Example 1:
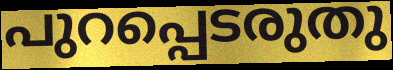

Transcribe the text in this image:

പുറപ്പെടരുതു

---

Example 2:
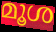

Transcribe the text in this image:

മൂശ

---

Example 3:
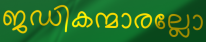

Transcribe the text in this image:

ജഡികന്മാരല്ലോ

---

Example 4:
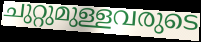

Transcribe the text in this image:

ചുറ്റുമുള്ളവരുടെ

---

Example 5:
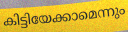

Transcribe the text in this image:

കിട്ടിയേക്കാമെന്നും